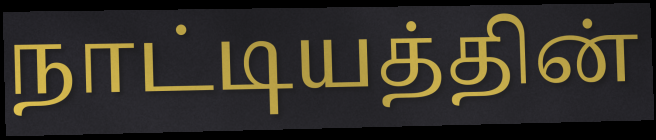
நாட்டியத்தின்